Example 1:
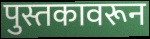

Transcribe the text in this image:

पुस्तकावरून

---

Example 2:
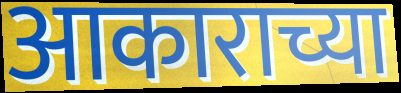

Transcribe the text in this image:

आकाराच्या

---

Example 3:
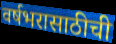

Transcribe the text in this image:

वर्षभरासाठीची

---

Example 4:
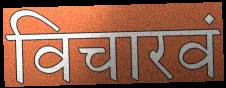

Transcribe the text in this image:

विचारवं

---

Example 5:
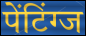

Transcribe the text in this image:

पेंटिंग्ज